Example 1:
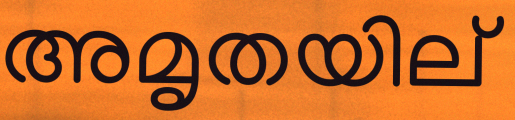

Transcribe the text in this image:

അമൃതയില്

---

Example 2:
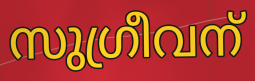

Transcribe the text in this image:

സുഗ്രീവന്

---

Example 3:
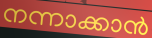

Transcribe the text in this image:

നന്നാക്കാൻ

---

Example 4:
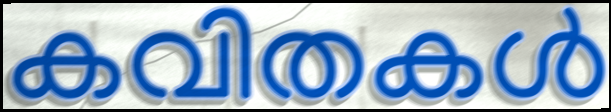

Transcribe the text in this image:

കവിതകൾ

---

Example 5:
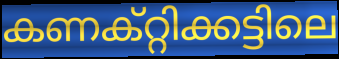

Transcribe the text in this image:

കണക്റ്റിക്കട്ടിലെ